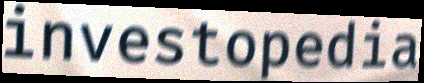
investopedia